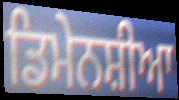
ਡਿਮੇਨਸ਼ੀਆ